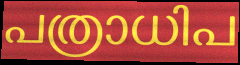
പത്രാധിപ